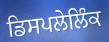
ਡਿਸਪਲੇਲਿੰਕ